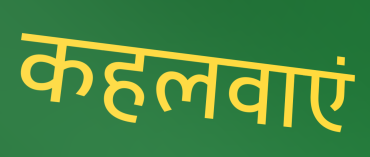
कहलवाएं